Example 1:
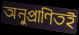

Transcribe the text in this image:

অনুপ্রাণিতই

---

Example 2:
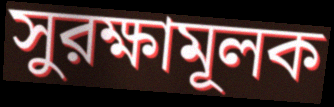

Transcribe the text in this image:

সুরক্ষামূলক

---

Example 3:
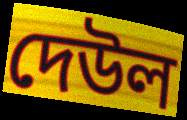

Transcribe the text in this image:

দেউল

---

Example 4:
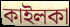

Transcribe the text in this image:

কাইলকা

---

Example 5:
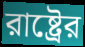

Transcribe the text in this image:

রাষ্ট্রের